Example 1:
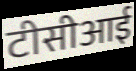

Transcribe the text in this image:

टीसीआई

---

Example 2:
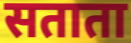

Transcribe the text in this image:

सताता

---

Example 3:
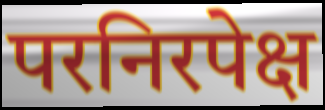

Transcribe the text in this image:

परनिरपेक्ष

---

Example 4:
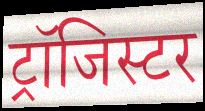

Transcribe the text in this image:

ट्रॉजिस्टर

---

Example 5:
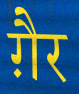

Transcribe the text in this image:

ग़ैर